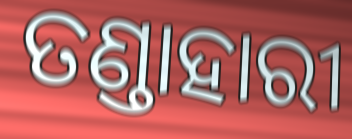
ତଣ୍ଡାହାରୀ